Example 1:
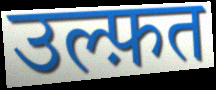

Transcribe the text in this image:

उल्फ़त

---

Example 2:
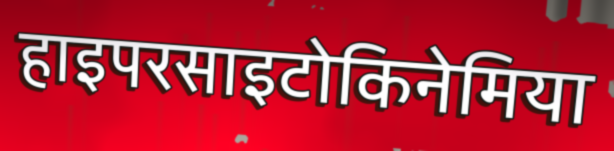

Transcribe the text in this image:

हाइपरसाइटोकिनेमिया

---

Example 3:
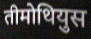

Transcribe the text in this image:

तीमोथियुस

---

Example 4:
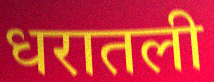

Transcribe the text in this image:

धरातली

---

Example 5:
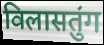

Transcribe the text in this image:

विलासतुंग